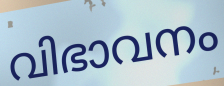
വിഭാവനം